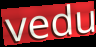
vedu